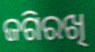
ଜଗିରଖି